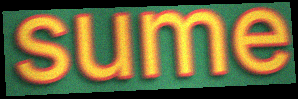
sume